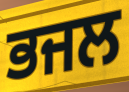
ਭਜਲ